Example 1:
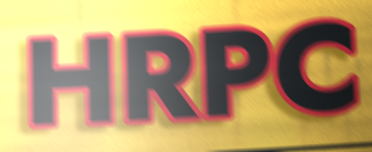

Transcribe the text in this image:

HRPC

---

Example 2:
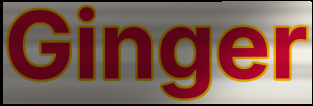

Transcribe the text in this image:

Ginger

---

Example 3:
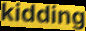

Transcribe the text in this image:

kidding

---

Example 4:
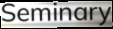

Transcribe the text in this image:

Seminary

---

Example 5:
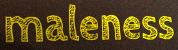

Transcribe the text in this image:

maleness